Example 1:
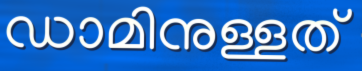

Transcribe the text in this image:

ഡാമിനുള്ളത്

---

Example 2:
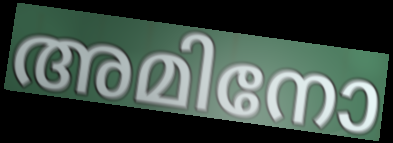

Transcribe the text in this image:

അമിനോ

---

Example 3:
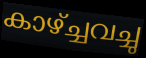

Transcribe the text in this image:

കാഴ്ച്ചവച്ചു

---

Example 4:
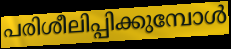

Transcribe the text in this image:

പരിശീലിപ്പിക്കുമ്പോൾ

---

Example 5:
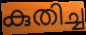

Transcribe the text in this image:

കുതിച്ച